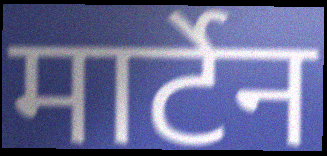
मार्टेन